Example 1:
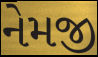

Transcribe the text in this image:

નેમજી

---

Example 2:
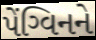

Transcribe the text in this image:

પેંગ્વિનને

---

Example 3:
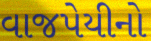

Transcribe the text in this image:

વાજપેયીનો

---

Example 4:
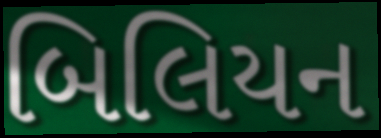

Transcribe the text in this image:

બિલિયન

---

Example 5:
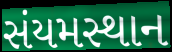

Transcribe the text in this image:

સંયમસ્થાન